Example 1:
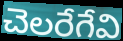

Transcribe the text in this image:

చెలరేగేవి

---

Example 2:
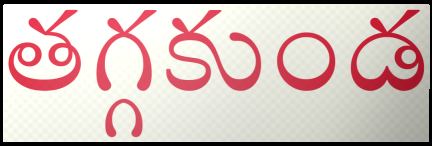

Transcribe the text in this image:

తగ్గకుండ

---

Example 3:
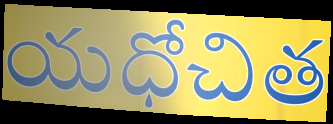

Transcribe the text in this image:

యధోచిత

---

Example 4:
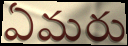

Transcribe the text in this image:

ఏమరు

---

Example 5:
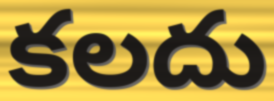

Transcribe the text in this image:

కలదు